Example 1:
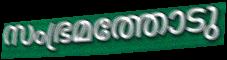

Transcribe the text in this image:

സംഭ്രമത്തോടു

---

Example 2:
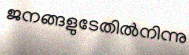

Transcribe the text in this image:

ജനങ്ങളുടേതിൽനിന്നു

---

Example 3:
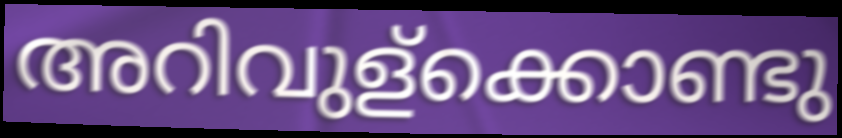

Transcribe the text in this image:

അറിവുള്ക്കൊണ്ടു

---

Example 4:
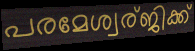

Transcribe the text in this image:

പരമേശ്വര്ജിക്ക്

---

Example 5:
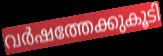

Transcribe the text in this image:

വർഷത്തേക്കുകൂടി